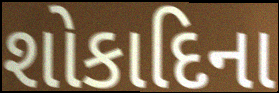
શોકાદિના